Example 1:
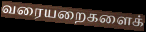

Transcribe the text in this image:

வரையறைகளைக்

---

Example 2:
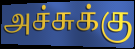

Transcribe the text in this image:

அச்சுக்கு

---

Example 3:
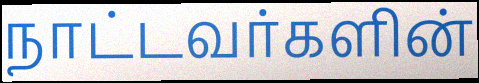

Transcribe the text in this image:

நாட்டவர்களின்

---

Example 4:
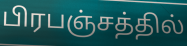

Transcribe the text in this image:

பிரபஞ்சத்தில்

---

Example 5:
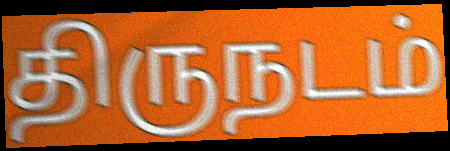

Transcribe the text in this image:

திருநடம்